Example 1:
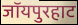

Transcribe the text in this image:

जॉयपुरहाट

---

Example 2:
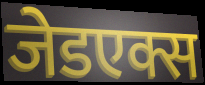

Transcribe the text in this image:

जेडएक्स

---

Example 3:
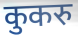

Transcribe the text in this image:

कुकरु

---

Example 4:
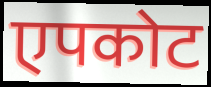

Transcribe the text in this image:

एपकोट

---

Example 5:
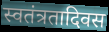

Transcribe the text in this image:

स्वतंत्रतादिवस